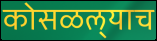
कोसळल्याच